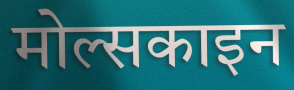
मोल्सकाइन